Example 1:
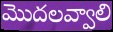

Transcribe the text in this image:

మొదలవ్వాలి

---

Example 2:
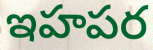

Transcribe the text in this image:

ఇహపర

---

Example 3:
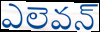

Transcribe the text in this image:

ఎలెవన్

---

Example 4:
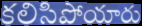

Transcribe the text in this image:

కలిసిపోయారు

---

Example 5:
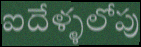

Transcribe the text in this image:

ఐదేళ్ళలోపు